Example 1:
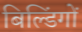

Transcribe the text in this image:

बिल्डिंगों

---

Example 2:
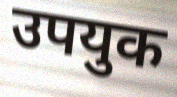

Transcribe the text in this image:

उपयुक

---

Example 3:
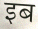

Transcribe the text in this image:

इब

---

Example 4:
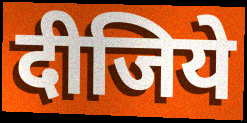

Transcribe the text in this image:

दीजिये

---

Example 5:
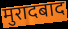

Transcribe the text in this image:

मुरादबाद